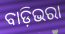
ବାଡ଼ିଭରା